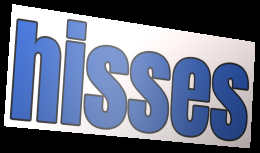
hisses